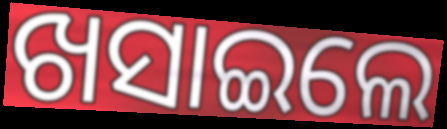
ଖସାଇଲେ